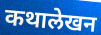
कथालेखन